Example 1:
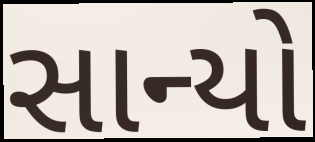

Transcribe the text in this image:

સાન્યો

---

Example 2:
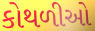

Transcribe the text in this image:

કોથળીઓ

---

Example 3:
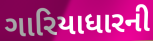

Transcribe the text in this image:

ગારિયાધારની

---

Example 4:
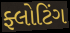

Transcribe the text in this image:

ફ્લોટિંગ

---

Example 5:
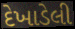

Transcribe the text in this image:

દેખાડેલી